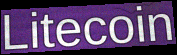
Litecoin